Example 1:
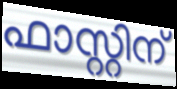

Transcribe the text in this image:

ഫാസ്റ്റിന്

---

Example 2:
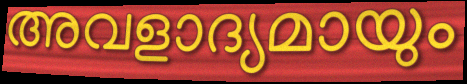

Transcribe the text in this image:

അവളാദ്യമായും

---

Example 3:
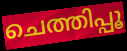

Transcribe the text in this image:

ചെത്തിപ്പൂ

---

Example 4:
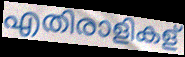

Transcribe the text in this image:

എതിരാളികള്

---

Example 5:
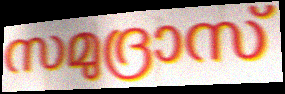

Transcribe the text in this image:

സമുദ്രാസ്